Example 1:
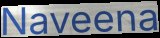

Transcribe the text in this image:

Naveena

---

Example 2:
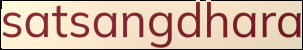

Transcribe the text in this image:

satsangdhara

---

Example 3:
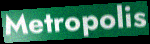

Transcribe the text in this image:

Metropolis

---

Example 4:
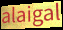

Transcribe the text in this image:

alaigal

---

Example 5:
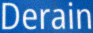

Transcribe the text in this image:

Derain